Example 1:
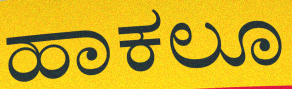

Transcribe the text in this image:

ಹಾಕಲೂ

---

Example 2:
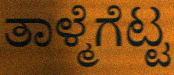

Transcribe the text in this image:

ತಾಳ್ಮೆಗೆಟ್ಟ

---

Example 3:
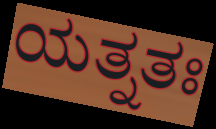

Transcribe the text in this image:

ಯತ್ನತಃ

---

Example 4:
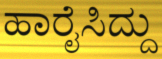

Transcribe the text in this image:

ಹಾರೈಸಿದ್ದು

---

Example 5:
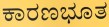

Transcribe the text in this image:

ಕಾರಣಭೂತ